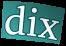
dix